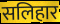
सलिहार